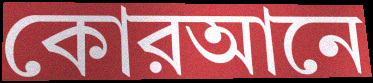
কোরআনে